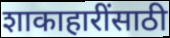
शाकाहारींसाठी